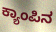
ಕ್ಯಾಂಪಿನ